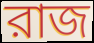
রাজ